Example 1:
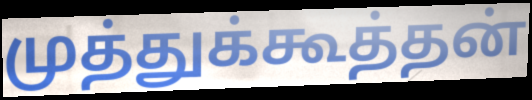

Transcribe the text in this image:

முத்துக்கூத்தன்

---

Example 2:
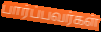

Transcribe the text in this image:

பார்ப்பவர்கள்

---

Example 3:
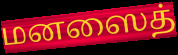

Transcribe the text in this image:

மனஸைத்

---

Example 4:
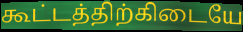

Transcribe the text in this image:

கூட்டத்திற்கிடையே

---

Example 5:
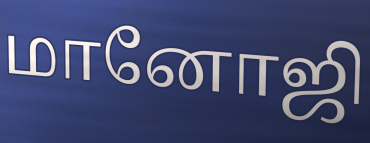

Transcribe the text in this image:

மானோஜி